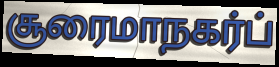
சூரைமாநகர்ப்